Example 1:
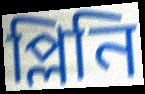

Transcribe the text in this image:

প্লিনি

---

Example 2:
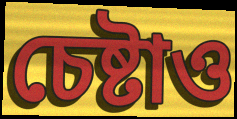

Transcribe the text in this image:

চেষ্টাও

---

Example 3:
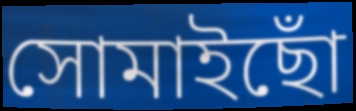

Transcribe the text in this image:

সোমাইছোঁ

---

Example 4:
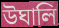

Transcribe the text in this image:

উঘালি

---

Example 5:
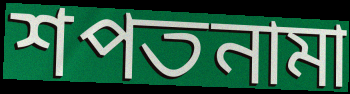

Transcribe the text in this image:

শপতনামা